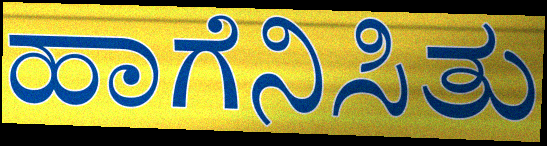
ಹಾಗೆನಿಸಿತು